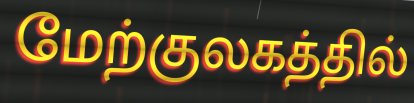
மேற்குலகத்தில்